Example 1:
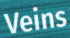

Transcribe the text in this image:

Veins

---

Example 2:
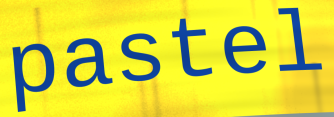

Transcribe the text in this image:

pastel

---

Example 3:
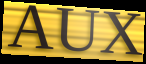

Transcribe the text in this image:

AUX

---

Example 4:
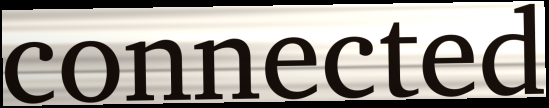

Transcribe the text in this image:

connected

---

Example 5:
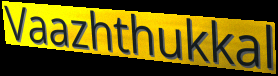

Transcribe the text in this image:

Vaazhthukkal